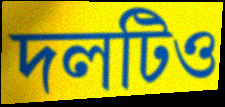
দলটিও